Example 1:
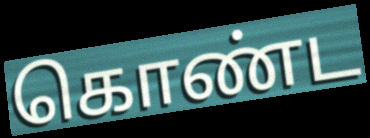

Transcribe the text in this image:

கொண்ட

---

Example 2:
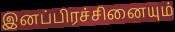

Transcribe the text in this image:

இனப்பிரச்சினையும்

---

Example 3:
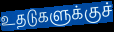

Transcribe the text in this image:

உதடுகளுக்குச்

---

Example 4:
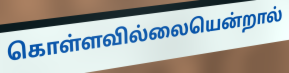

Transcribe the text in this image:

கொள்ளவில்லையென்றால்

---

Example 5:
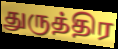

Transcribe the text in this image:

துருத்திர